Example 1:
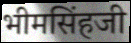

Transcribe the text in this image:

भीमसिंहजी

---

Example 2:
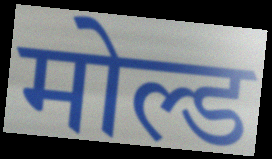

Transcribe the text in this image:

मोल्ड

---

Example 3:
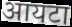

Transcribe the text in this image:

आयटा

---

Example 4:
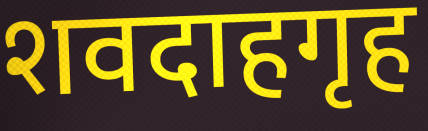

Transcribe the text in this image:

शवदाहगृह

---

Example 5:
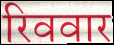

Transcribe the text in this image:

रिववार